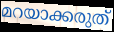
മറയാക്കരുത്